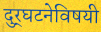
दुर्घटनेविषयी